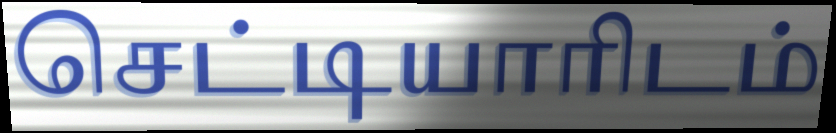
செட்டியாரிடம்